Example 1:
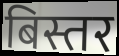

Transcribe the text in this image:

बिस्तर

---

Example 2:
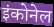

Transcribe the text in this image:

इंकोनेल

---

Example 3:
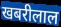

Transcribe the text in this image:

खबरीलाल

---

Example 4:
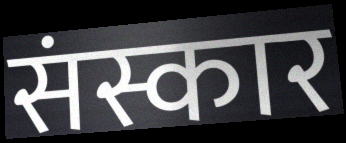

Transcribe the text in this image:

संस्कार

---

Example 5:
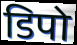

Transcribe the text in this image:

डिपो